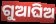
ଗୁଆଘିଅ